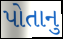
પોતાનુ